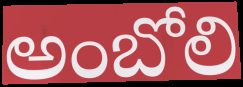
అంబోలి